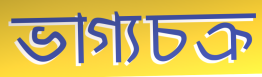
ভাগ্যচক্র